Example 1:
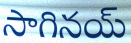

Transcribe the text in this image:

సాగినయ్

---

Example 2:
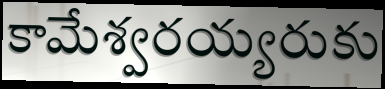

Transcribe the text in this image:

కామేశ్వరయ్యరుకు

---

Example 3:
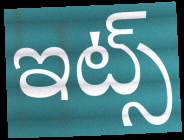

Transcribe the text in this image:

ఇట్స్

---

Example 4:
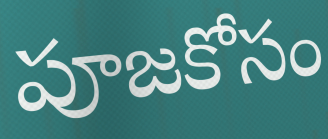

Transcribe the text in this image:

పూజకోసం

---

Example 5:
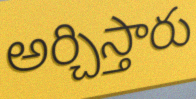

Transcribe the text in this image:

అర్చిస్తారు